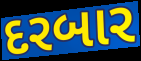
દરબાર